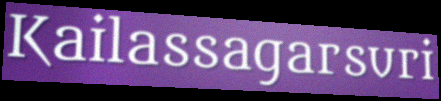
Kailassagarsuri